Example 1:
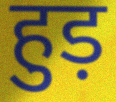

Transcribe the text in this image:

हुड़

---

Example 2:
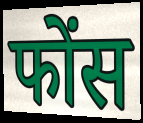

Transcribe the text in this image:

फोंस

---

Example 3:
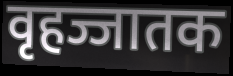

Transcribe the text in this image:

वृहज्जातक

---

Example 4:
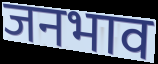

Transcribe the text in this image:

जनभाव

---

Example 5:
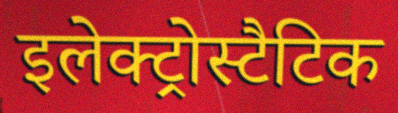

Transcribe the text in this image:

इलेक्ट्रोस्टैटिक